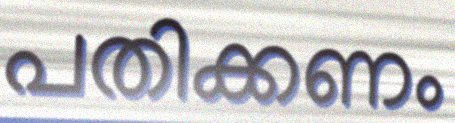
പതിക്കണം